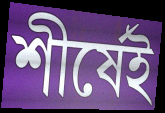
শীর্ষেই